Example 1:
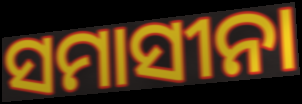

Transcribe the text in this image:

ସମାସୀନା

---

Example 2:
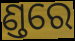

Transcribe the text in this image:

ଣ୍ଡରେ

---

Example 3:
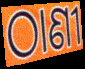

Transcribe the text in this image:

ଠାଣୀ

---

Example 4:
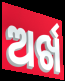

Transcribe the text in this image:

ଅର୍ଖ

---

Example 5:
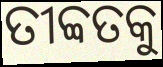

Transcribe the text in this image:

ତୀବ୍ବତକୁ